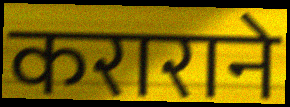
कराराने